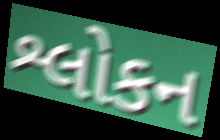
શ્લોકન